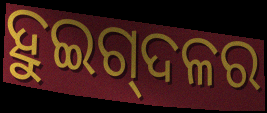
ହୁଇଗ୍‌ଦଳର